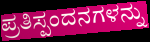
ಪ್ರತಿಸ್ಪಂದನಗಳನ್ನು